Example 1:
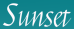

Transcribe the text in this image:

Sunset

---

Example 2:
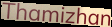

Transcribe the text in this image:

Thamizhan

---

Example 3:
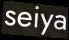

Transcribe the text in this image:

seiya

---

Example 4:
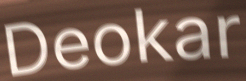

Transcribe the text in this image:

Deokar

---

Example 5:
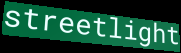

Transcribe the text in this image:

streetlight